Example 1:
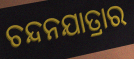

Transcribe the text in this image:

ଚନ୍ଦନଯାତ୍ରାର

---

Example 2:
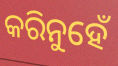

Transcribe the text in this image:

କରିନୁହେଁ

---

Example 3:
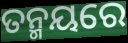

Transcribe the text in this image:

ତନ୍ମୟରେ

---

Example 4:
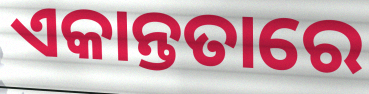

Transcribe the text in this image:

ଏକାନ୍ତତାରେ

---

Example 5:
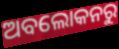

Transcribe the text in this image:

ଅବଲୋକନରୁ